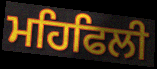
ਮਹਿਫਿਲੀ